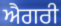
ਐਗਰੀ